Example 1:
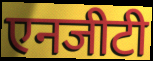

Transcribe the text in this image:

एनजीटी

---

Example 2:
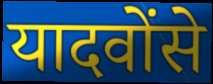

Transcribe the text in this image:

यादवोंसे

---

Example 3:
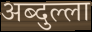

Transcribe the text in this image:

अब्दुल्ला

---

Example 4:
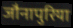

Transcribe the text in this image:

जौनापुरिया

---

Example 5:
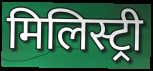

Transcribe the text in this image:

मिलिस्ट्री